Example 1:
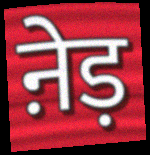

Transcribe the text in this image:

ऩेड़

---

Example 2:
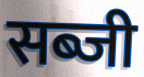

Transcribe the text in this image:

सब्जी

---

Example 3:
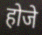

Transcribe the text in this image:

होजे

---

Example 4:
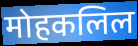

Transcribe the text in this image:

मोहकलिल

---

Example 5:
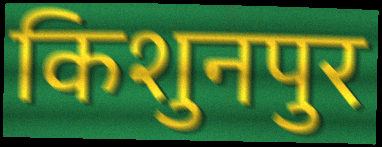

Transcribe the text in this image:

किशुनपुर